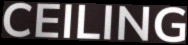
CEILING